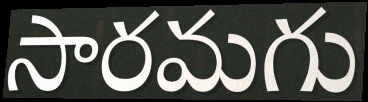
సారమగు